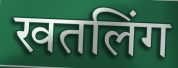
खतलिंग